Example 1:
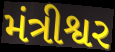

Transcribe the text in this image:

મંત્રીશ્વર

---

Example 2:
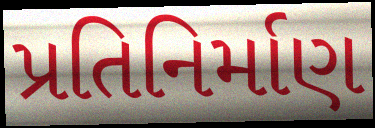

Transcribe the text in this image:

પ્રતિનિર્માણ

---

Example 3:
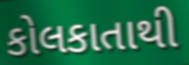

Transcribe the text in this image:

કોલકાતાથી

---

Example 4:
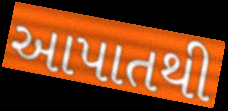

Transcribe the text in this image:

આપાતથી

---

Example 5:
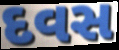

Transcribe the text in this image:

દવસ